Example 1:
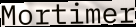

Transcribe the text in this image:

Mortimer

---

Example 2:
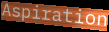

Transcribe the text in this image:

Aspiration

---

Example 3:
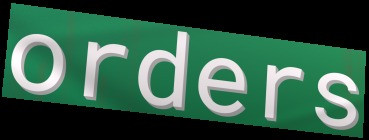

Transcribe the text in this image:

orders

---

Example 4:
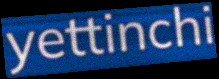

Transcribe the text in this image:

yettinchi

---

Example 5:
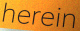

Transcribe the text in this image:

herein